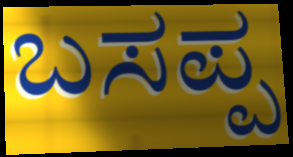
ಬಸಪ್ಪ